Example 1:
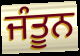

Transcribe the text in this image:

ਜੰਤੂਨ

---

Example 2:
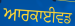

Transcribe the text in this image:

ਆਰਕਾਈਵਡ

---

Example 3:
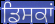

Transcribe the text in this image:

ਡਿਸਕਾਂ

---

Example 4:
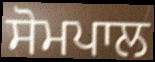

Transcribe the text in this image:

ਸੋਮਪਾਲ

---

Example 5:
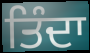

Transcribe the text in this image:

ਤਿੰਦਾ